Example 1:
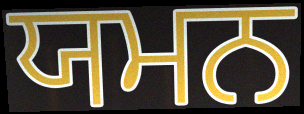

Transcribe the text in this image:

ਯਮਨ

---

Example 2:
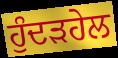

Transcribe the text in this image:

ਹੁੰਦੜਹੇਲ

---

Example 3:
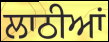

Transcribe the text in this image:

ਲਾਠੀਆਂ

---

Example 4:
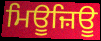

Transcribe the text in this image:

ਮਿਊਜ਼ਿਊ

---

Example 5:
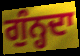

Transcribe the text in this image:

ਗੁੰਨ੍ਹਦਾ